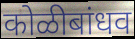
कोळीबांधव